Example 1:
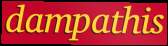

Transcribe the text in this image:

dampathis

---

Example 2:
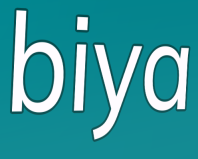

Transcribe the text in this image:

biya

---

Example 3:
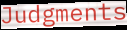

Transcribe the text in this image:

Judgments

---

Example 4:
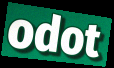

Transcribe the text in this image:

odot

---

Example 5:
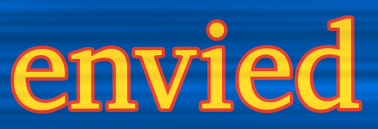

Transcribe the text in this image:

envied